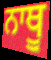
ਨਾਥੂ